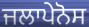
ਜਲਾਪੇਨੋਸ